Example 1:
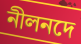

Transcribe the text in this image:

নীলনদে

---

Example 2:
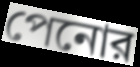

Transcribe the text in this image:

পেনোর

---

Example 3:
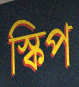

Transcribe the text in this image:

স্কিপ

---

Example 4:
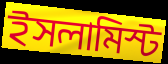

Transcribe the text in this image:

ইসলামিস্ট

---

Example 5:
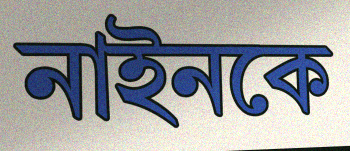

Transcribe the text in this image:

নাইনকে